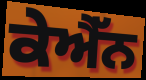
ਕੇਐੱਨ